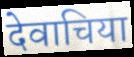
देवाचिया